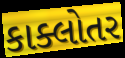
કાક્લોતર